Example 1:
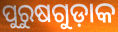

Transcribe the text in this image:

ପୁରୁଷଗୁଡ଼ାକ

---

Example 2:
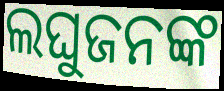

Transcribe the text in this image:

ଲଘୁଜନଙ୍କ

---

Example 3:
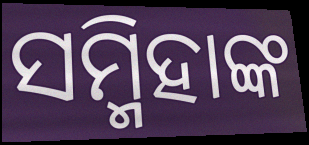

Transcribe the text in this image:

ସମ୍ମିହାଙ୍କ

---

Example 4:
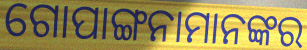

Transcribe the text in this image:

ଗୋପାଙ୍ଗନାମାନଙ୍କର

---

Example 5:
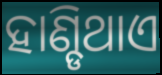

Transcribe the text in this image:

ହାଣ୍ଡିଥାଏ